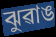
ঝুৱাঙ